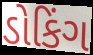
ડોકિંગ